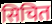
सिचित